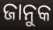
ଜାନୁକ